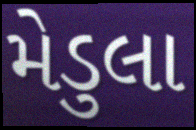
મેડુલા